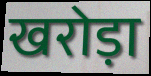
खरोड़ा